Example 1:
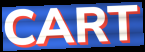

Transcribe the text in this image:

CART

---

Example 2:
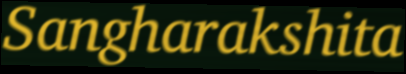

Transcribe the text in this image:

Sangharakshita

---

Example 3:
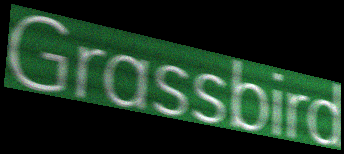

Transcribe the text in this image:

Grassbird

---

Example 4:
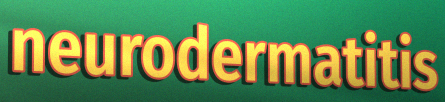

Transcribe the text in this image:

neurodermatitis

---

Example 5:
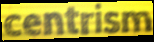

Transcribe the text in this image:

centrism